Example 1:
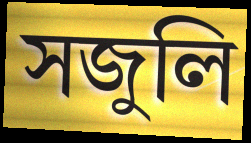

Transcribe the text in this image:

সজুলি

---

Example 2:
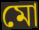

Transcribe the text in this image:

মো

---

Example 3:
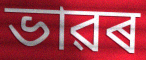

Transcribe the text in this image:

ভাৱৰ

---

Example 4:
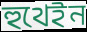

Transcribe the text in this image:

হুথেইন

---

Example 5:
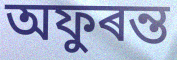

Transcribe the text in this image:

অফুৰন্ত